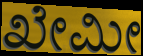
ಖೇಮೀ